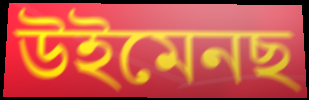
উইমেনছ